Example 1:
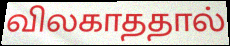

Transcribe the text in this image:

விலகாததால்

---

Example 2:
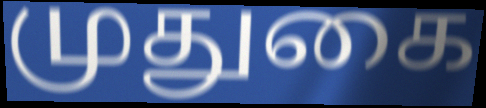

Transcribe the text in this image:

முதுகை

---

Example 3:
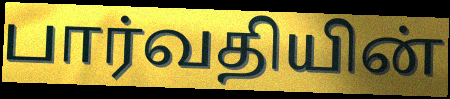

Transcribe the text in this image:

பார்வதியின்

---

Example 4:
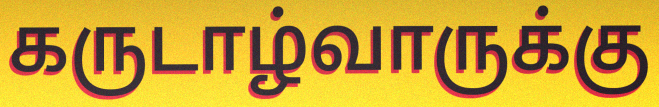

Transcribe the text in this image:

கருடாழ்வாருக்கு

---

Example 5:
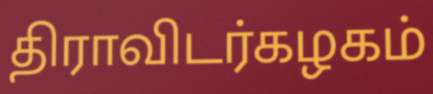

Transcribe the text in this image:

திராவிடர்கழகம்